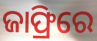
ଜାଫ୍ରିରେ